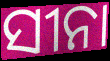
ସୀନା